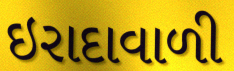
ઇરાદાવાળી